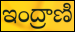
ఇంద్రాణి